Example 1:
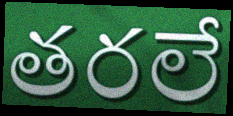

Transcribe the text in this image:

తరలే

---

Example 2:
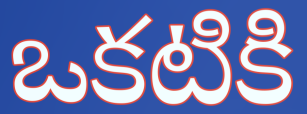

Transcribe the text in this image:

ఒకటికి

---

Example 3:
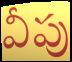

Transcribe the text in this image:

వీపు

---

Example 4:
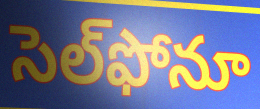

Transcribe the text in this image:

సెల్‌ఫోనూ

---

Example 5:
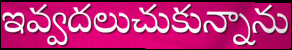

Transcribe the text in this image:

ఇవ్వదలుచుకున్నాను